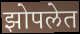
झोपलेत